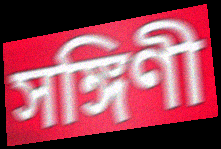
সঙ্গিণী